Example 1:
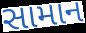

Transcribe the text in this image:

સામાન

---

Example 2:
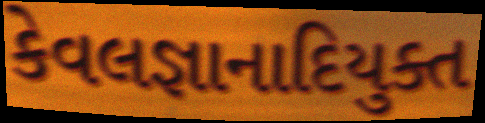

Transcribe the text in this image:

કેવલજ્ઞાનાદિયુક્ત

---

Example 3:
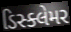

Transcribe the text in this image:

ડિસ્ક્લેમર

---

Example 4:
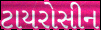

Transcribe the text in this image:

ટાયરોસીન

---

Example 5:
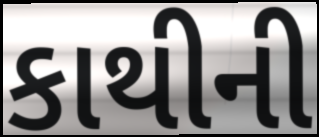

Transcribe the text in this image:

કાથીની